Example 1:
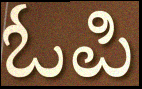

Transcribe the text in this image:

ಓಪಿ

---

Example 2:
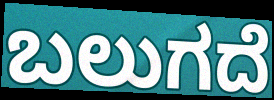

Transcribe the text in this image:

ಬಲುಗದೆ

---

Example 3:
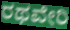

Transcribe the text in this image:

ರಥವೇರಿ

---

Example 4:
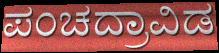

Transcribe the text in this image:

ಪಂಚದ್ರಾವಿಡ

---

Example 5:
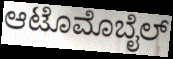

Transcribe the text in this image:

ಆಟೊಮೊಬೈಲ್